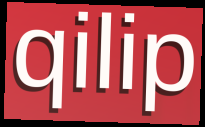
qilip